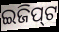
ଇଜିପ୍‌ଟ